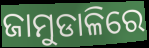
ଜାମୁଡାଳିରେ